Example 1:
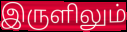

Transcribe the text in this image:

இருளிலும்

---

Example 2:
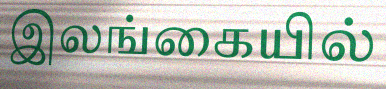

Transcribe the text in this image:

இலங்கையில்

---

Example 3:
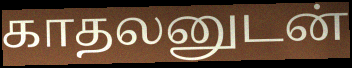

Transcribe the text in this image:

காதலனுடன்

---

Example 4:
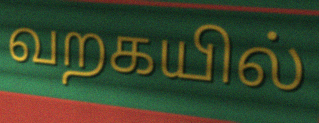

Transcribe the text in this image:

வறகயில்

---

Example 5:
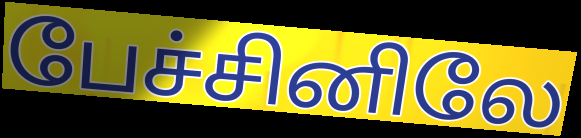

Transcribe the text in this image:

பேச்சினிலே